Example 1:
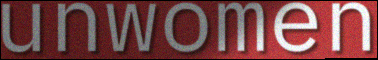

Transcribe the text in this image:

unwomen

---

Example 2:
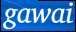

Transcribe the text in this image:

gawai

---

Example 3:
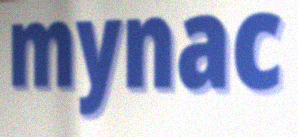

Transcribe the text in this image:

mynac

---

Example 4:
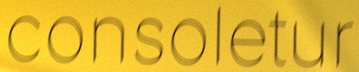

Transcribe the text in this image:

consoletur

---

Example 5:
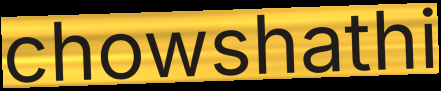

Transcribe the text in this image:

chowshathi